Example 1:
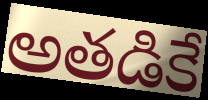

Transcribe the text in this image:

అతడికే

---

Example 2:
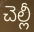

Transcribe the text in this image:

చెల్లీ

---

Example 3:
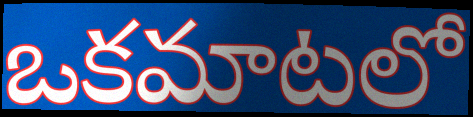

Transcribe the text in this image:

ఒకమాటలో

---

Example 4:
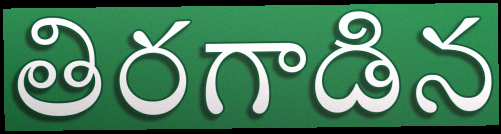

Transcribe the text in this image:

తిరగాడిన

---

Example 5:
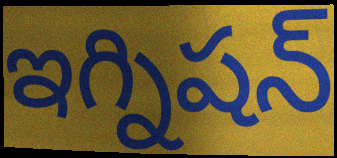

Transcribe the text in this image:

ఇగ్నిషన్